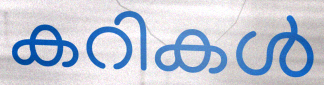
കറികൾ